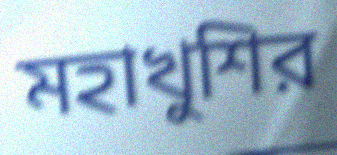
মহাখুশির